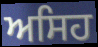
ਅਸਿਹ